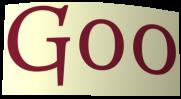
Goo